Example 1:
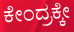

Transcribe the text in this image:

ಕೇಂದ್ರಕ್ಕೇ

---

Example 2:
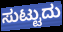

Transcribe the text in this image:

ಸುಟ್ಟುದು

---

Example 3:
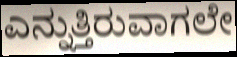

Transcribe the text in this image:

ಎನ್ನುತ್ತಿರುವಾಗಲೇ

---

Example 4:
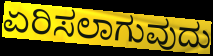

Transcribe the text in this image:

ಏರಿಸಲಾಗುವುದು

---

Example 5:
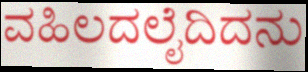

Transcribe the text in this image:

ವಹಿಲದಲೈದಿದನು